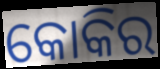
କୋକିର